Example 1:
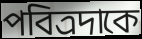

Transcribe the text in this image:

পবিত্রদাকে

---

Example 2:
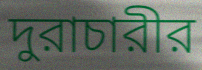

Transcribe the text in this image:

দুরাচারীর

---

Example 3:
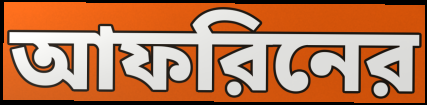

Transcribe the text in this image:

আফরিনের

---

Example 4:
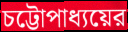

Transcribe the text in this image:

চট্টোপাধ্যয়ের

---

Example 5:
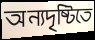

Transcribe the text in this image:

অন্যদৃষ্টিতে